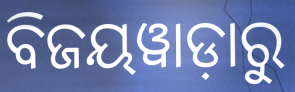
ବିଜୟୱାଡ଼ାରୁ